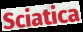
Sciatica